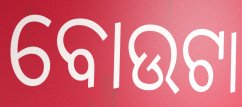
ବୋଉଟା